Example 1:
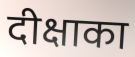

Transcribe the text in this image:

दीक्षाका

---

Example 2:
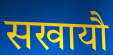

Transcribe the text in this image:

सखायौ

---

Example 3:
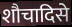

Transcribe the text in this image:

शौचादिसे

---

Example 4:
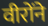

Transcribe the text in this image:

वीरोंने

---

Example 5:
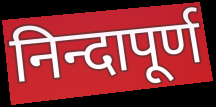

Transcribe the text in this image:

निन्दापूर्ण